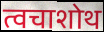
त्वचाशोथ